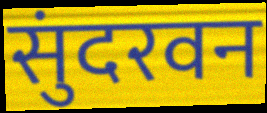
सुंदरवन